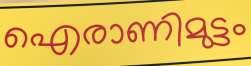
ഐരാണിമുട്ടം